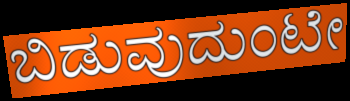
ಬಿಡುವುದುಂಟೇ